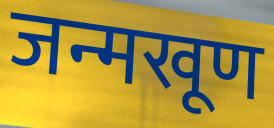
जन्मखूण